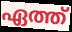
ഏത്ത്